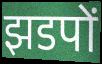
झडपों